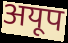
अयूप